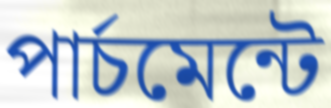
পার্চমেন্টে